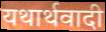
यथार्थवादी